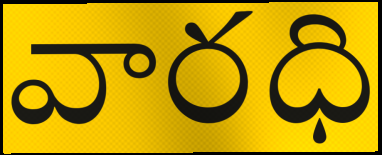
వారధి